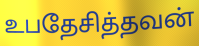
உபதேசித்தவன்